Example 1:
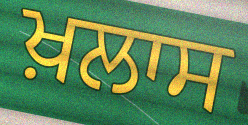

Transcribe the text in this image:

ਖ਼ਲਾਸ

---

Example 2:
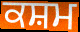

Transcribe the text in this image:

ਕਸ਼ਮ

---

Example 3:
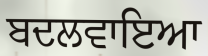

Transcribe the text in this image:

ਬਦਲਵਾਇਆ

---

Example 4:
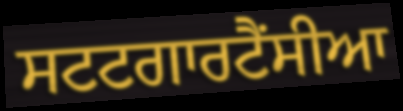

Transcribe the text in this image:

ਸਟਟਗਾਰਟੈਂਸੀਆ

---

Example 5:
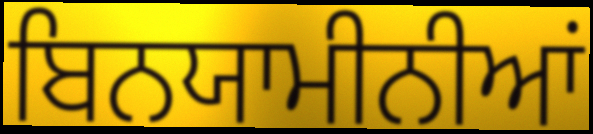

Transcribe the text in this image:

ਬਿਨਯਾਮੀਨੀਆਂ